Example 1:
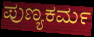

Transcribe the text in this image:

ಪುಣ್ಯಕರ್ಮ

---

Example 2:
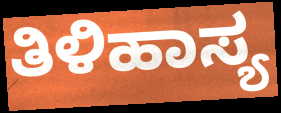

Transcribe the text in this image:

ತಿಳಿಹಾಸ್ಯ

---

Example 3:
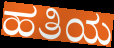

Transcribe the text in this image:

ಹತಿಯ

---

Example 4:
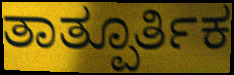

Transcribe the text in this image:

ತಾತ್ಪೂರ್ತಿಕ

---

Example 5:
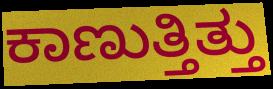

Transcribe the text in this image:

ಕಾಣುತ್ತಿತ್ತು